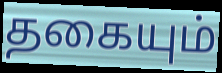
தகையும்